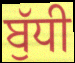
ਬੁੱਧੀ